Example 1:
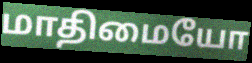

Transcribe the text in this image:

மாதிமையோ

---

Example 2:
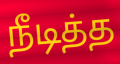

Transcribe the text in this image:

நீடித்த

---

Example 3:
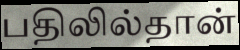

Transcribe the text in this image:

பதிலில்தான்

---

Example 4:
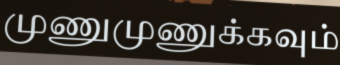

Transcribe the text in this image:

முணுமுணுக்கவும்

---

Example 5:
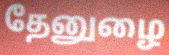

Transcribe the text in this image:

தேனுழை